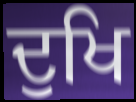
ਦੁਖਿ